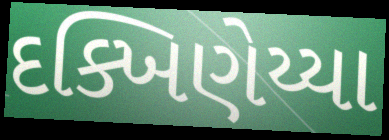
દક્ખિણેય્યા